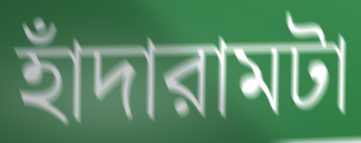
হাঁদারামটা